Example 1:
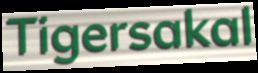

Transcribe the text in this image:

Tigersakal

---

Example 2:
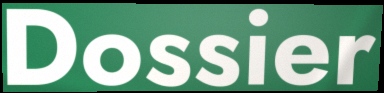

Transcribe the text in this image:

Dossier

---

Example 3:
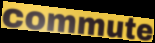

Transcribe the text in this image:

commute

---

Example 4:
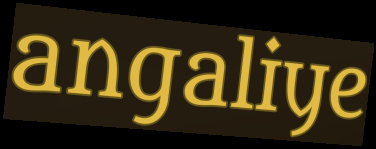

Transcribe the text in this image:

angaliye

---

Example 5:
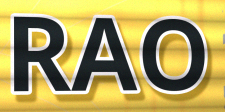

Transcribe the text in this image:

RAO